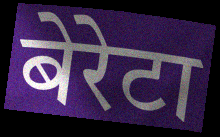
बेरेटा